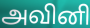
அவினி